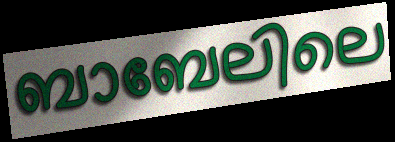
ബാബേലിലെ